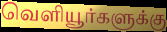
வெளியூர்களுக்கு